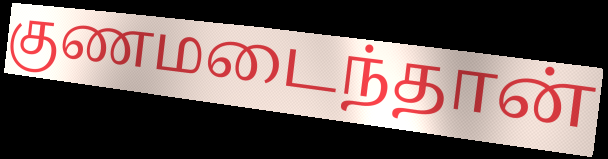
குணமடைந்தான்